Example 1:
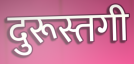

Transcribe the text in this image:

दुरूस्तगी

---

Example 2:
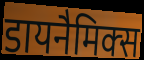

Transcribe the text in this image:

डायनैमिक्‍स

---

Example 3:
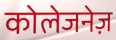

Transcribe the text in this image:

कोलेजनेज़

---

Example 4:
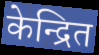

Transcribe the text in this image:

केन्द्रित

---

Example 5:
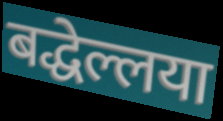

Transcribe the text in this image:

बद्धेल्लया